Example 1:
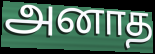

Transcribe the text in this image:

அனாத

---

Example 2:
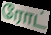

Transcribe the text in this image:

ரோட்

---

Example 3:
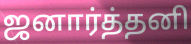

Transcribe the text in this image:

ஜனார்த்தனி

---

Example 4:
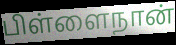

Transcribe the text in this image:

பிள்ளைநான்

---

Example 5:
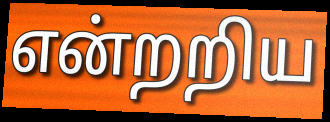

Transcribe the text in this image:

என்றறிய